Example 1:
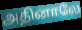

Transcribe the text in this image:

அதினாலே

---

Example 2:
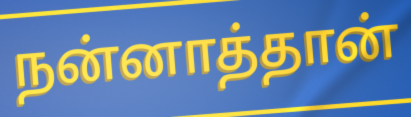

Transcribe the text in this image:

நன்னாத்தான்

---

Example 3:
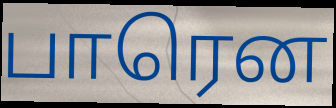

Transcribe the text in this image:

பாரென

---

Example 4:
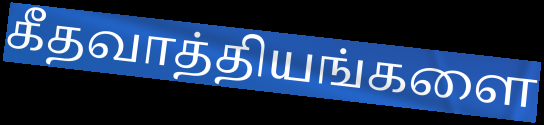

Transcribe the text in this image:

கீதவாத்தியங்களை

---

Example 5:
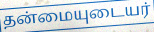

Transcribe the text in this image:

தன்மையுடையர்